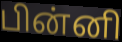
பின்னி